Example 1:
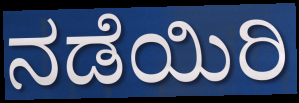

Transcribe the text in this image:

ನಡೆಯಿರಿ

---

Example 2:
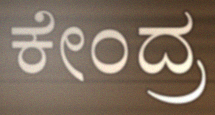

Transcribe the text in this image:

ಕೇಂದ್ರ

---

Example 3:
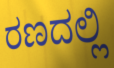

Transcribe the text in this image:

ರಣದಲ್ಲಿ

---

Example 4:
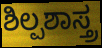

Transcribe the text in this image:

ಶಿಲ್ಪಶಾಸ್ತ್ರ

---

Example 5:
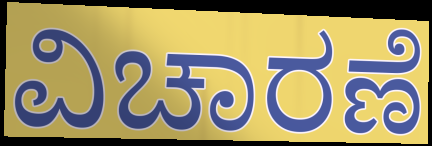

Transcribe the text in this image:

ವಿಚಾರಣೆ